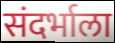
संदर्भाला